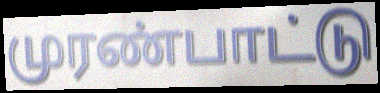
முரண்பாட்டு